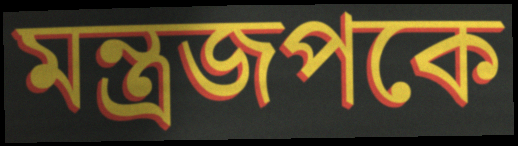
মন্ত্রজপকে